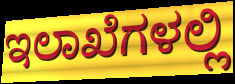
ಇಲಾಖೆಗಳಲ್ಲಿ